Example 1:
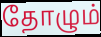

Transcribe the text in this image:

தோழும்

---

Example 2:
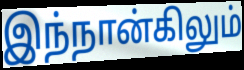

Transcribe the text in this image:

இந்நான்கிலும்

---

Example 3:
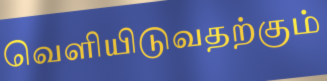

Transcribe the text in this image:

வெளியிடுவதற்கும்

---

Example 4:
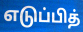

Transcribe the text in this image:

எடுப்பித்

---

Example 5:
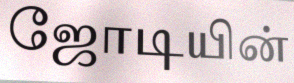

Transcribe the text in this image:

ஜோடியின்